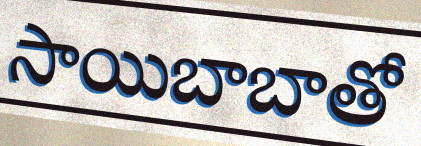
సాయిబాబాతో